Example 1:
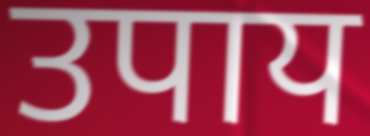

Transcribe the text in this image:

उपाय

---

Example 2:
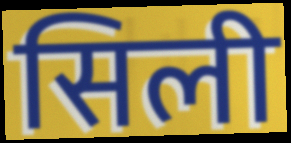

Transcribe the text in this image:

सिली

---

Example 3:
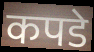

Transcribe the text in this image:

कपडे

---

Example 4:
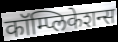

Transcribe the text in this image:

कॉम्प्लिकेशन्स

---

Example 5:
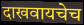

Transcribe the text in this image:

दाखवायचेच